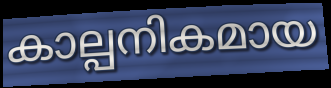
കാല്പനികമായ